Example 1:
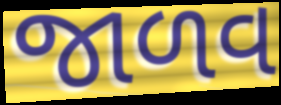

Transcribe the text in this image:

જાળવ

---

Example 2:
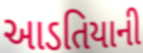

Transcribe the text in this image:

આડતિયાની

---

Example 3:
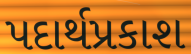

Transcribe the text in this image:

પદાર્થપ્રકાશ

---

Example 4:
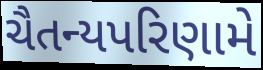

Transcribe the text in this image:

ચૈતન્યપરિણામે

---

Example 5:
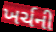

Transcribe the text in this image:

ખર્ચની